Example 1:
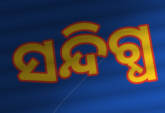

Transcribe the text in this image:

ସନ୍ଦିଗ୍ଧ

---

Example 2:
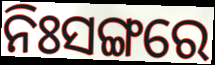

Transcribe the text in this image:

ନିଃସଙ୍ଗରେ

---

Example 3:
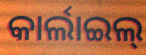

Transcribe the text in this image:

କାର୍ଲାଇଲ୍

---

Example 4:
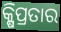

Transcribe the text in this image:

କ୍ଷିପ୍ରତାର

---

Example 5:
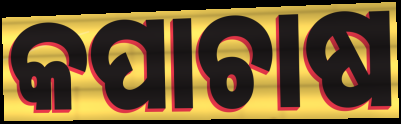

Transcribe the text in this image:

କପାଚାଷ